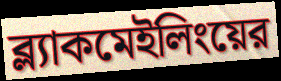
ব্ল্যাকমেইলিংয়ের